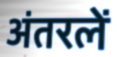
अंतरलें